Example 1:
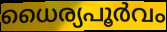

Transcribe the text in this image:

ധൈര്യപൂർവം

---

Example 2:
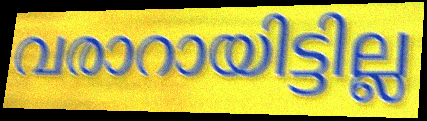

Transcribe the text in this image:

വരാറായിട്ടില്ല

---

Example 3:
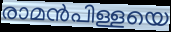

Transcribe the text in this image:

രാമൻപിള്ളയെ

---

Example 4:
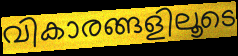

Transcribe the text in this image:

വികാരങ്ങളിലൂടെ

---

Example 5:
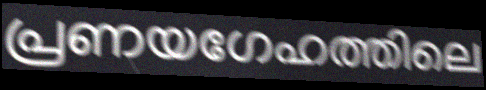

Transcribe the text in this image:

പ്രണയഗേഹത്തിലെ